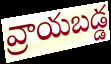
వ్రాయబడ్డ